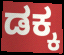
ಡಕ್ಕ